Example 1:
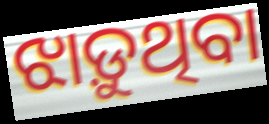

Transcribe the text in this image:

ଝାଡ଼ୁଥିବା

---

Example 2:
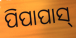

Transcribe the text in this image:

ପିପାପାସ୍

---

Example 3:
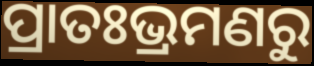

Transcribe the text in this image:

ପ୍ରାତଃଭ୍ରମଣରୁ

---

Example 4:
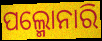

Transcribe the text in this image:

ପଲ୍ମୋନାରି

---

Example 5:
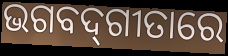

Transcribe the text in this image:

ଭଗବଦ୍‌ଗୀତାରେ